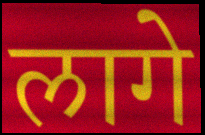
लागे